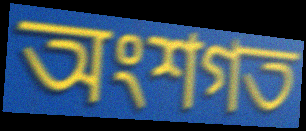
অংশগত